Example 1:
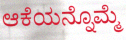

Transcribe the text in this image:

ಆಕೆಯನ್ನೊಮ್ಮೆ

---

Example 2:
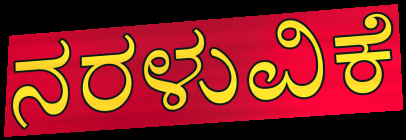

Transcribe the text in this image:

ನರಳುವಿಕೆ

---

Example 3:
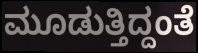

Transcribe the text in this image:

ಮೂಡುತ್ತಿದ್ದಂತೆ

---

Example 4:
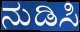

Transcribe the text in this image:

ನುಡಿಸಿ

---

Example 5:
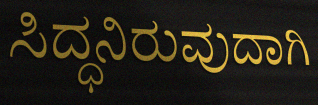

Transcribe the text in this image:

ಸಿದ್ಧನಿರುವುದಾಗಿ